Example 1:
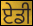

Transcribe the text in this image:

ਏਡੀ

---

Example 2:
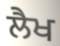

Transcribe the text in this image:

ਲੈਖ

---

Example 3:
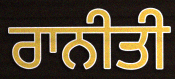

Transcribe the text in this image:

ਰਾਨੀਤੀ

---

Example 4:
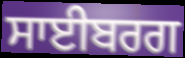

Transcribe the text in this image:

ਸਾਈਬਰਗ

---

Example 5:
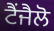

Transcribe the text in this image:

ਟੈਂਜੈਲੋ